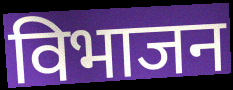
विभाजन